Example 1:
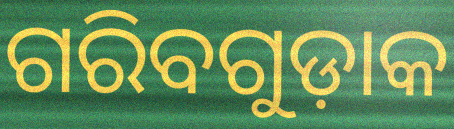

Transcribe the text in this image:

ଗରିବଗୁଡ଼ାକ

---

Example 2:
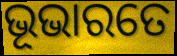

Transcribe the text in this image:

ଭୂଭାରତେ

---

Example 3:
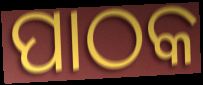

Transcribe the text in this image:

ପାଠକ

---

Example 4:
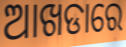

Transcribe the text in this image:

ଆଖଡାରେ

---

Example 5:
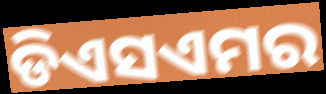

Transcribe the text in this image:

ଡିଏସଏମର